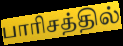
பாரிசத்தில்